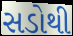
સડોથી